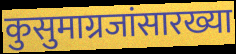
कुसुमाग्रजांसारख्या